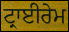
ਟ੍ਰਾਈਰੇਮ